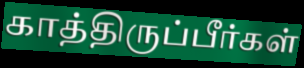
காத்திருப்பீர்கள்